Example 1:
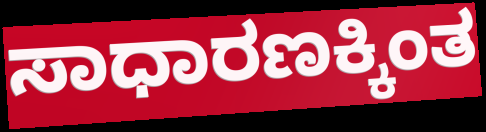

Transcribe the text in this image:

ಸಾಧಾರಣಕ್ಕಿಂತ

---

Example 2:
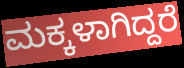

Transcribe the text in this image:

ಮಕ್ಕಳಾಗಿದ್ದರೆ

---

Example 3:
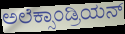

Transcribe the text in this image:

ಅಲೆಕ್ಸಾಂಡ್ರಿಯನ್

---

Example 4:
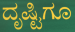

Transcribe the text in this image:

ದೃಷ್ಟಿಗೂ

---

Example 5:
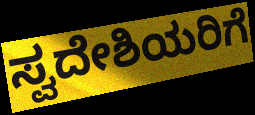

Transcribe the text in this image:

ಸ್ವದೇಶಿಯರಿಗೆ